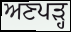
ਅਣਪੜ੍ਹ